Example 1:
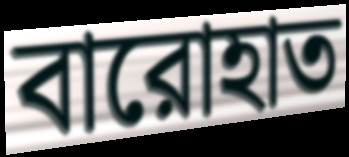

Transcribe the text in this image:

বারোহাত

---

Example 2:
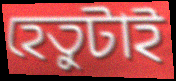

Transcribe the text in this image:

হেতুটাই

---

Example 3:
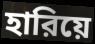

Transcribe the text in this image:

হারিয়ে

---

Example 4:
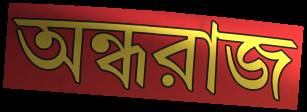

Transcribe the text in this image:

অন্ধরাজ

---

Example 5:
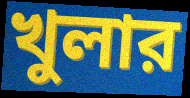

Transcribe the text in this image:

খুলার